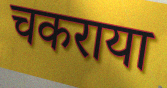
चकराया